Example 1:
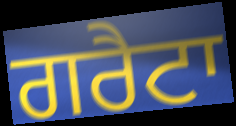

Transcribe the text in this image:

ਗਰੈਟਾ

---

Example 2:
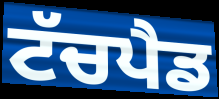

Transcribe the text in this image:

ਟੱਚਪੈਡ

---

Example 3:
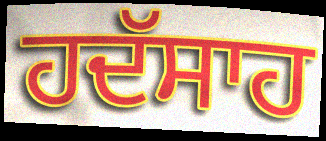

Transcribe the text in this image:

ਹਦੱਸਾਹ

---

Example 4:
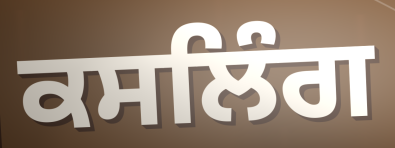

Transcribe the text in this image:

ਕਸਲਿੰਗ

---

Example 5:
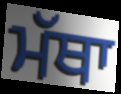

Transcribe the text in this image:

ਮੱਥਾ